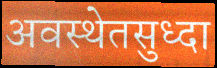
अवस्थेतसुध्दा